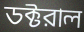
ডক্টরাল